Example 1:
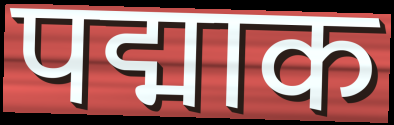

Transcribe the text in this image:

पद्माक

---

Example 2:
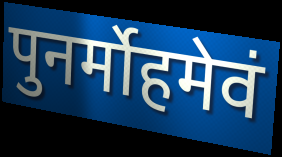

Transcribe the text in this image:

पुनर्मोहमेवं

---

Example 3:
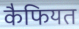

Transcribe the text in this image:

कैफियत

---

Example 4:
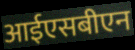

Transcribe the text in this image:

आईएसबीएन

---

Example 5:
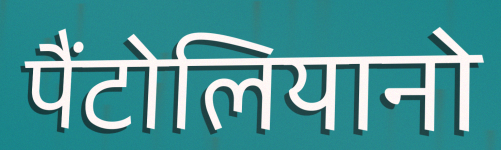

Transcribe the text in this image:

पैंटोलियानो